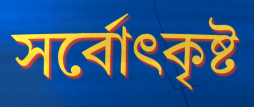
সর্বোৎকৃষ্ট